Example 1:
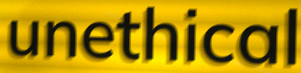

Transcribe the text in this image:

unethical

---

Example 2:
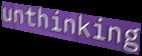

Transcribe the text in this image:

unthinking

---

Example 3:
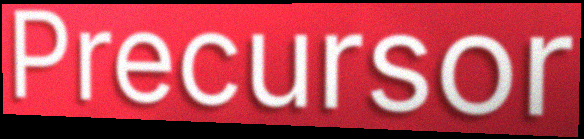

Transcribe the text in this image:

Precursor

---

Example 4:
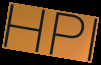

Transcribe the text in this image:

HPI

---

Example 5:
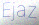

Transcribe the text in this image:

Ejaz